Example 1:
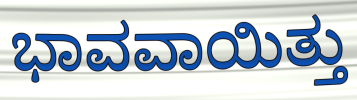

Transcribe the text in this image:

ಭಾವವಾಯಿತ್ತು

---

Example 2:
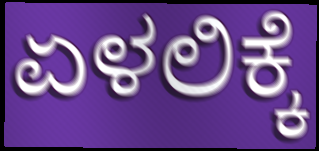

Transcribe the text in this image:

ಏಳಲಿಕ್ಕೆ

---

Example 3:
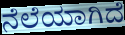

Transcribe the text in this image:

ನೆಲೆಯಾಗಿದೆ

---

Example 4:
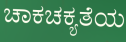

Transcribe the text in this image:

ಚಾಕಚಕ್ಯತೆಯ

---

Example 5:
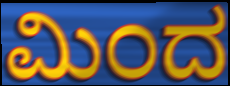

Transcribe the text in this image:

ಮಿಂದ